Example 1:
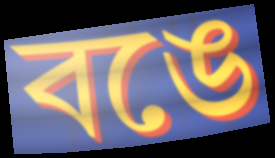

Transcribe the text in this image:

বঙে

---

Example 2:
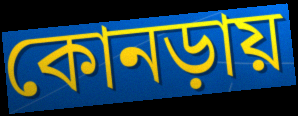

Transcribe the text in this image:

কোনড়ায়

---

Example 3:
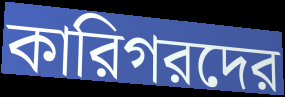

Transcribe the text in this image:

কারিগরদের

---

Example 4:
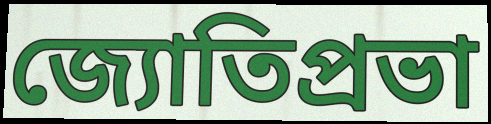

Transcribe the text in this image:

জ্যোতিপ্রভা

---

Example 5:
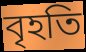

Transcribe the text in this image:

বৃহতি